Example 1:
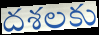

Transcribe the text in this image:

దశలకు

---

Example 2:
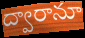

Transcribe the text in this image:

ద్వారానూ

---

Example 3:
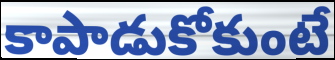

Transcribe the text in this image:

కాపాడుకోకుంటే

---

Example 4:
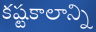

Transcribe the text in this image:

కష్టకాలాన్ని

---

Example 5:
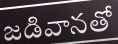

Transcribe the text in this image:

జడివానతో